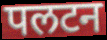
पलटन